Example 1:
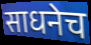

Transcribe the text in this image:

साधनेच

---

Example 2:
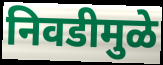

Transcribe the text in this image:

निवडीमुळे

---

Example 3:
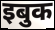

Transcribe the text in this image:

इबुक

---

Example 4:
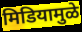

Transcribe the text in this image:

मिडियामुळे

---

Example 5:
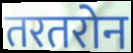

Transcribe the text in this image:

तरतरोन